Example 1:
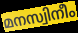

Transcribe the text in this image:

മനസ്വിനീം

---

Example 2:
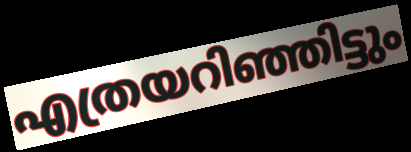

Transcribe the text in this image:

എത്രയറിഞ്ഞിട്ടും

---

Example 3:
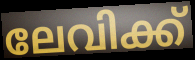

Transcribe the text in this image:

ലേവിക്ക്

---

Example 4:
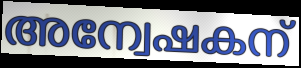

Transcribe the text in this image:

അന്വേഷകന്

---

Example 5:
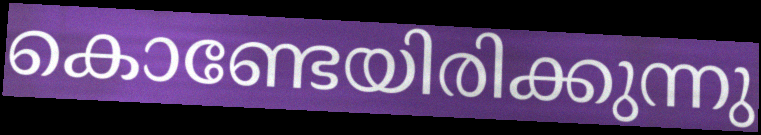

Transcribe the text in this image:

കൊണ്ടേയിരിക്കുന്നു